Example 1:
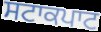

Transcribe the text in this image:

ਸਟਾਕਪਾਟ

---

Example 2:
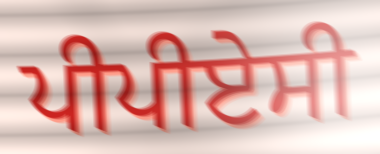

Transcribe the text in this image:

ਪੀਪੀਏਸੀ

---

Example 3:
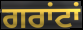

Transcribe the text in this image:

ਗਰਾਂਟਾਂ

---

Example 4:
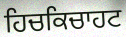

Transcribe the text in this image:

ਹਿਚਕਿਚਾਹਟ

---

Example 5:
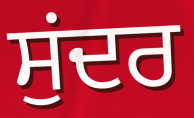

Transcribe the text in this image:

ਸੁਂਦਰ